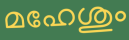
മഹേശും